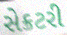
સેક્રટરી